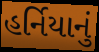
હર્નિયાનું